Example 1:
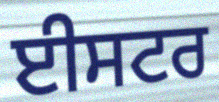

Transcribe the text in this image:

ਈਸਟਰ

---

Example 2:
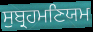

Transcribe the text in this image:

ਸੁਬ੍ਰਹਮਣਿਯਮ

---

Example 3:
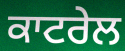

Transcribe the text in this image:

ਕਾਟਰੇਲ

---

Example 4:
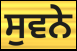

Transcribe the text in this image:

ਸੁਵਨੇ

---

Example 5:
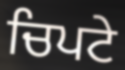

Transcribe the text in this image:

ਚਿਪਟੇ